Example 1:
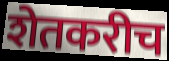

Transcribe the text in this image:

शेतकरीच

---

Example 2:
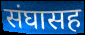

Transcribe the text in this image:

संघासह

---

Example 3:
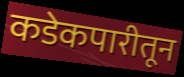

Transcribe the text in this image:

कडेकपारीतून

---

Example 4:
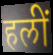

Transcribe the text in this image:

हलीं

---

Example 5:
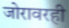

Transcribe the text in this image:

जोरावरही